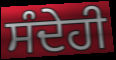
ਸੰਦੇਹੀ